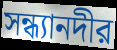
সন্ধ্যানদীর